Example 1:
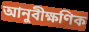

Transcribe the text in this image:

আনুবীক্ষণিক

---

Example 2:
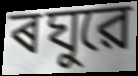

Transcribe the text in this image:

ৰঘুৱে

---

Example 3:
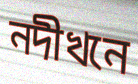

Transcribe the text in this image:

নদীখনে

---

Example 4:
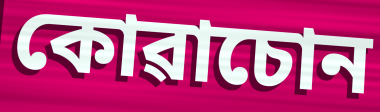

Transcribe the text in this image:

কোৱাচোন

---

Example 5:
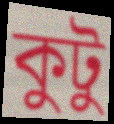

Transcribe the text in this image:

কুটু